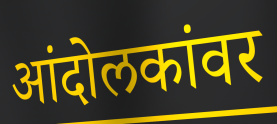
आंदोलकांवर